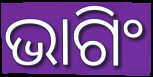
ଭାଗିଂ